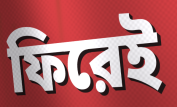
ফিরেই